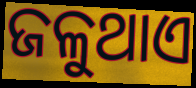
ଜଳୁଥାଏ